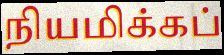
நியமிக்கப்